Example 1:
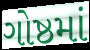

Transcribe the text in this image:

ગોષ્ઠમાં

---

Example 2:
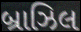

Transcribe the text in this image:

બ્રાઝિલ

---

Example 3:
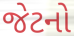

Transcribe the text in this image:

જેટનો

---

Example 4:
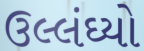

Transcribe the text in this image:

ઉલ્લંઘ્યો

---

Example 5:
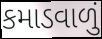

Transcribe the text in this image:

કમાડવાળું